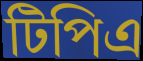
টিপিএ